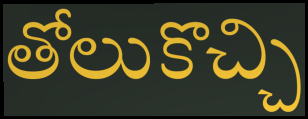
తోలుకొచ్చి